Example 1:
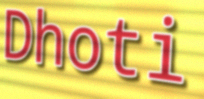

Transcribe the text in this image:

Dhoti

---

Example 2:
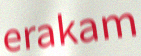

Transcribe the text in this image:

erakam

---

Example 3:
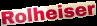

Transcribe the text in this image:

Rolheiser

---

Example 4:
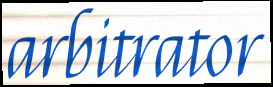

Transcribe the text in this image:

arbitrator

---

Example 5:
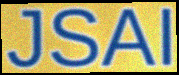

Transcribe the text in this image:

JSAI